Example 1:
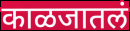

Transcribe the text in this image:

काळजातलं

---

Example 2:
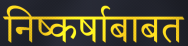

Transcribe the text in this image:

निष्कर्षाबाबत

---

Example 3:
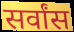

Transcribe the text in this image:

सर्वांस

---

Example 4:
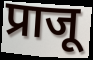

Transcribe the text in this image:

प्राजू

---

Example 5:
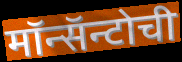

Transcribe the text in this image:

मॉन्सॅन्टोची